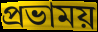
প্রভাময়